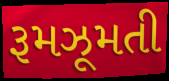
રૂમઝૂમતી